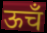
ऊचँ